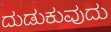
ದುಡುಕುವುದು